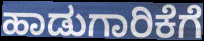
ಹಾಡುಗಾರಿಕೆಗೆ